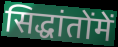
सिद्धांतोंमें